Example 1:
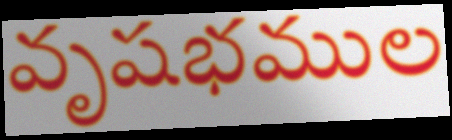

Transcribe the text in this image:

వృషభముల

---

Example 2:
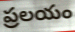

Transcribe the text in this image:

ప్రలయం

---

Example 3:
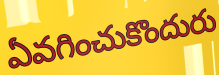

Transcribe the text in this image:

ఏవగించుకొందురు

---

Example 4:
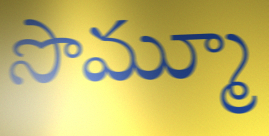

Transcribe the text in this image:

సొమ్మూ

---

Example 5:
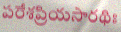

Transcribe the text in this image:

పరేశప్రియసారథిః